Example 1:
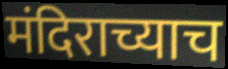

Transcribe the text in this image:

मंदिराच्याच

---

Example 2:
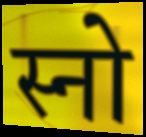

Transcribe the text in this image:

स्नो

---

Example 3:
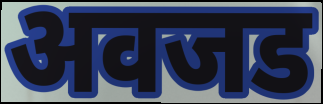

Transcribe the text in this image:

अवजड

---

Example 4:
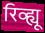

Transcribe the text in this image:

रिव्ह्यू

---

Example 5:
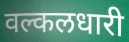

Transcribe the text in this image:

वल्कलधारी